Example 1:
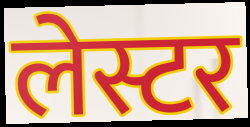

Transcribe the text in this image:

लेस्टर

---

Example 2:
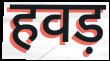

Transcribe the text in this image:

हवड़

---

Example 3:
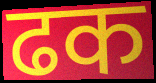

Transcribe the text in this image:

ढक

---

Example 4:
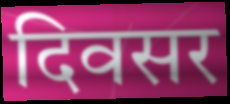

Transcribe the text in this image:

दिवसर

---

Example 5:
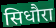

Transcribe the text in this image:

सिधौरा